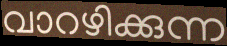
വാറഴിക്കുന്ന